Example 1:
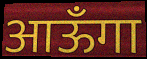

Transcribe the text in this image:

आऊँगा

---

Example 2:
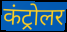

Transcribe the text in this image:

कंट्रोलर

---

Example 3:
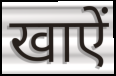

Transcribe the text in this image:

खाऐं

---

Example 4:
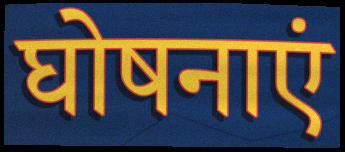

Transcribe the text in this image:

घोषनाएं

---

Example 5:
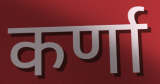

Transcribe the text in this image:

कर्णा